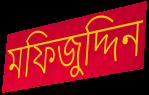
মফিজুদ্দিন